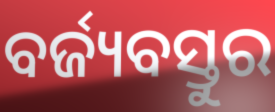
ବର୍ଜ୍ୟବସ୍ତୁର